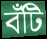
বঁটি